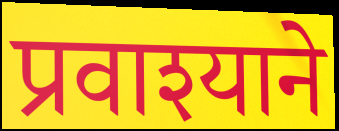
प्रवाश्याने